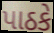
પાઠકે